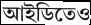
আইডিতেও